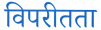
विपरीतता